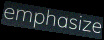
emphasize